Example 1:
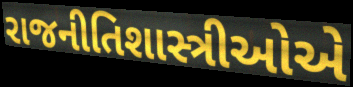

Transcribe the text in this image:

રાજનીતિશાસ્ત્રીઓએ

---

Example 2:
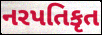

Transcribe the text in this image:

નરપતિકૃત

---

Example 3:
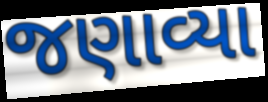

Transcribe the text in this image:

જણાવ્યા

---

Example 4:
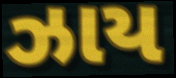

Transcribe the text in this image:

ઝાય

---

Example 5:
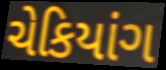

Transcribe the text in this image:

ચેકિયાંગ